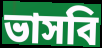
ভাসবি